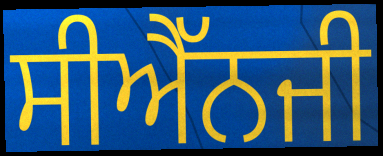
ਸੀਐੱਨਜੀ